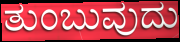
ತುಂಬುವುದು